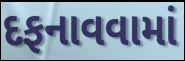
દફનાવવામાં